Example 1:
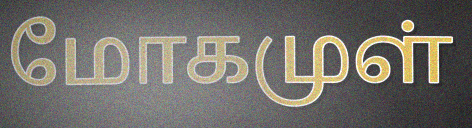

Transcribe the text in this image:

மோகமுள்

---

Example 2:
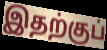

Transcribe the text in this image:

இதற்குப்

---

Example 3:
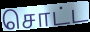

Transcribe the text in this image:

சொட்ட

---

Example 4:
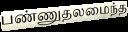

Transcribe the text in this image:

பண்ணுதலமைந்த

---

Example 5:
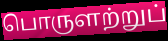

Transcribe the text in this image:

பொருளற்றுப்